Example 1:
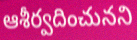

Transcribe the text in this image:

ఆశీర్వదించునని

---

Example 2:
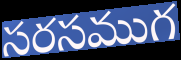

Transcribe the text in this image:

సరసముగ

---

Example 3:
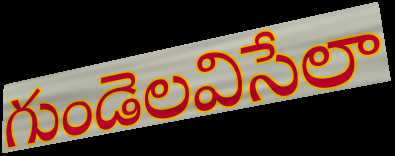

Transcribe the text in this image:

గుండెలవిసేలా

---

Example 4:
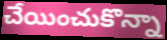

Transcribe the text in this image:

చేయించుకొన్నా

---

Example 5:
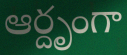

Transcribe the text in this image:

ఆర్దృంగా